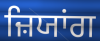
ਜ਼ਿਯਾਂਗ